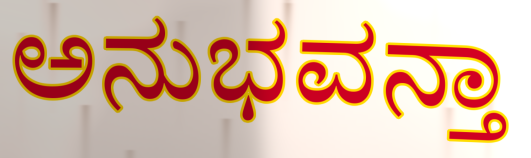
ಅನುಭವನ್ತಾ